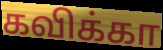
கவிக்கா